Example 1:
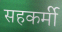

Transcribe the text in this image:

सहकर्मी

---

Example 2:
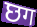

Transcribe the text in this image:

छग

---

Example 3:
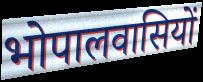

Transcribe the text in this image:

भोपालवासियों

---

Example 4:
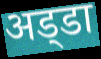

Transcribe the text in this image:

अड्‌डा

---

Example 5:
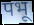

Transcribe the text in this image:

पभू